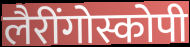
लैरींगोस्कोपी